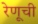
रेणूची